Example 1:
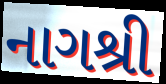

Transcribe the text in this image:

નાગશ્રી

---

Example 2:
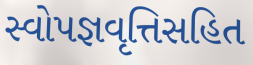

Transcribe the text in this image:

સ્વોપજ્ઞવૃત્તિસહિત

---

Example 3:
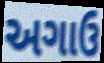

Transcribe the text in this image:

અગાઉ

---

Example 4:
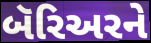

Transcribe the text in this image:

બૅરિઅરને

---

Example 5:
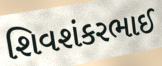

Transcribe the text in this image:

શિવશંકરભાઈ